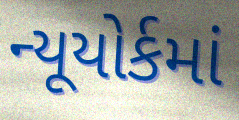
ન્યૂયોર્કમાં